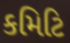
કમિટિ